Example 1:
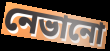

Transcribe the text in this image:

নেভানো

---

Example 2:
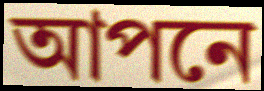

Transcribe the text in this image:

আপনে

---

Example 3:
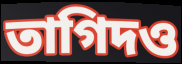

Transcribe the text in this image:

তাগিদও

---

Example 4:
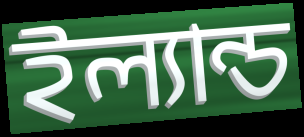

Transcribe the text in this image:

ইল্যান্ড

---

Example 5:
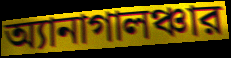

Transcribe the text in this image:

অ্যানাগালঞ্চার